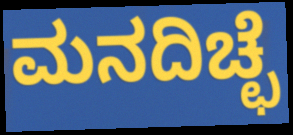
ಮನದಿಚ್ಛೆ